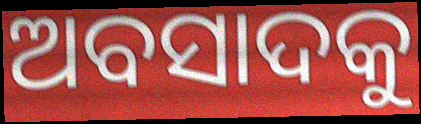
ଅବସାଦକୁ